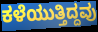
ಕಳೆಯುತ್ತಿದ್ದವು